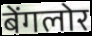
बेंगलोर